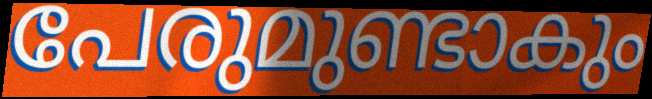
പേരുമുണ്ടാകും